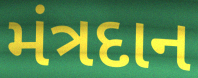
મંત્રદાન